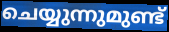
ചെയ്യുന്നുമുണ്ട്